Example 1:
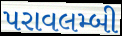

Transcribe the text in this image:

પરાવલમ્બી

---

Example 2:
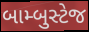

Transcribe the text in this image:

બામ્બુસ્ટેજ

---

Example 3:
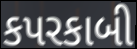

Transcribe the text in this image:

કપરકાબી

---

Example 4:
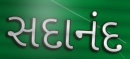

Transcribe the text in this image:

સદાનંદ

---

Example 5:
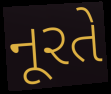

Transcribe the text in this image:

નૂરતે